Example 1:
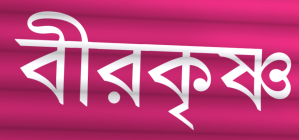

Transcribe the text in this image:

বীরকৃষ্ণ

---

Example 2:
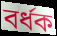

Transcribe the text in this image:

বর্ধক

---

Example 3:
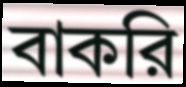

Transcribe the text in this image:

বাকরি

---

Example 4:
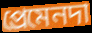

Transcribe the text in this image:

প্রেমেনদা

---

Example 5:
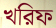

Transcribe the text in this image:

খরিফ